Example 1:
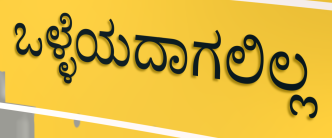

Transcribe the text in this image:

ಒಳ್ಳೆಯದಾಗಲಿಲ್ಲ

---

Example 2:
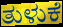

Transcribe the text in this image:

ತುಳುಕೆ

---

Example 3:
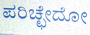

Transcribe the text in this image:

ಪರಿಚ್ಛೇದೋ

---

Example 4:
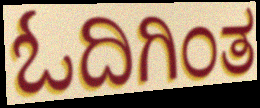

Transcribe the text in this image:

ಓದಿಗಿಂತ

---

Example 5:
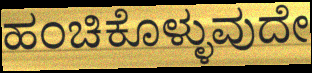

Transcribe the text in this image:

ಹಂಚಿಕೊಳ್ಳುವುದೇ